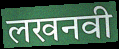
लखनवी